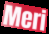
Meri